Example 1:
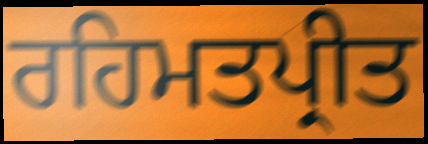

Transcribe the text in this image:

ਰਹਿਮਤਪ੍ਰੀਤ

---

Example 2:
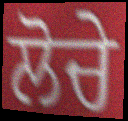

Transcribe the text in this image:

ਲੋਚੇ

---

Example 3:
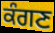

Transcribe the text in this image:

ਕੰਗਣ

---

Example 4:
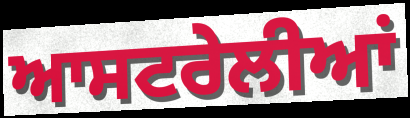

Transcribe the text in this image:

ਆਸਟਰੇਲੀਆਂ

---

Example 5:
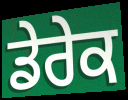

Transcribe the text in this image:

ਡੇਰੇਕ